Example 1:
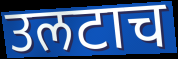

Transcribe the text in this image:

उलटाच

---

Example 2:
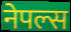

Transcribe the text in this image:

नेपल्स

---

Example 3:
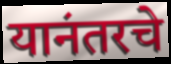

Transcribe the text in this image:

यानंतरचे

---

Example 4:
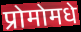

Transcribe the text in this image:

प्रोमोमधे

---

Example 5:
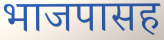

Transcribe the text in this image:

भाजपासह